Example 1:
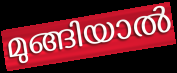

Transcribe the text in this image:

മുങ്ങിയാൽ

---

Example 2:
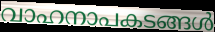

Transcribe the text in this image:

വാഹനാപകടങ്ങൾ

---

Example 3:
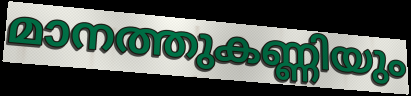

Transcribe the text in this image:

മാനത്തുകണ്ണിയും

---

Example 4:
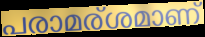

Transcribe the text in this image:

പരാമര്ശമാണ്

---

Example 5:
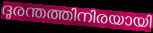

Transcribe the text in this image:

ദുരന്തത്തിനിരയായി